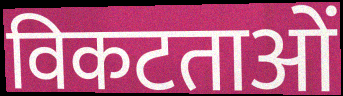
विकटताओं